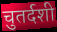
चुतर्दशी